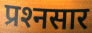
प्रश्‍नसार